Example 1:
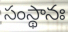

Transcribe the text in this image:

సంస్థానః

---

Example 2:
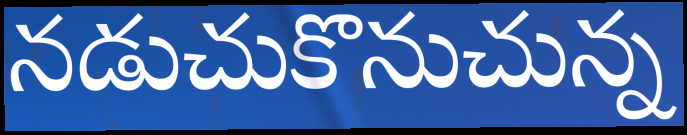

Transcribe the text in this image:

నడుచుకొనుచున్న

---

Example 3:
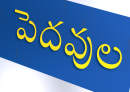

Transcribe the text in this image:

పెదవుల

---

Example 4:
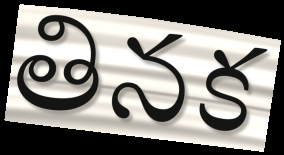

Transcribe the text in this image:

తినక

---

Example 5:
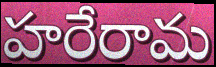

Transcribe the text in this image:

హరేరామ